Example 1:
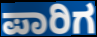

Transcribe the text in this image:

ಪಾರಿಗ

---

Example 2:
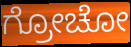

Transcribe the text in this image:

ಗ್ರೋಚೋ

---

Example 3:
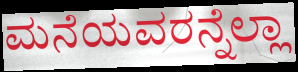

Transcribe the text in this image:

ಮನೆಯವರನ್ನೆಲ್ಲಾ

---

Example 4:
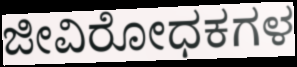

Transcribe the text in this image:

ಜೀವಿರೋಧಕಗಳ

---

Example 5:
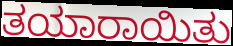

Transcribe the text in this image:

ತಯಾರಾಯಿತು